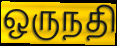
ஒருநதி